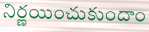
నిర్ణయించుకుందాం